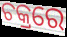
ଚକ୍ରରେ